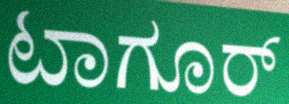
ಟಾಗೂರ್